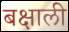
बक्षाली